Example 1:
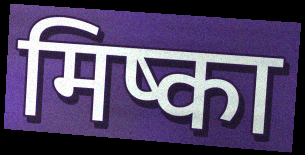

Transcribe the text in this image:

मिष्का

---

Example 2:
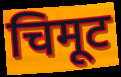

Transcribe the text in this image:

चिमूट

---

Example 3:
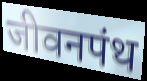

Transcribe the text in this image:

जीवनपंथ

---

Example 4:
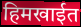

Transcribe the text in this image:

हिमखाईत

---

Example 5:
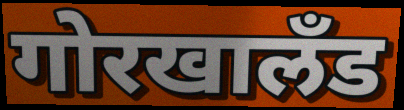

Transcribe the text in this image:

गोरखालॅंड